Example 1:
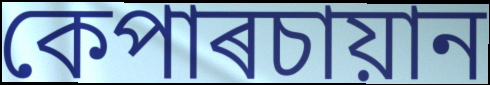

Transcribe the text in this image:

কেপাৰচায়ান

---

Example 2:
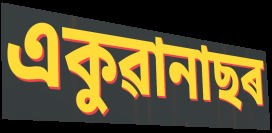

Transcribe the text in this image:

একুৱানাছৰ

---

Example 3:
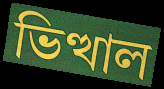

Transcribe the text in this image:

ভিত্থাল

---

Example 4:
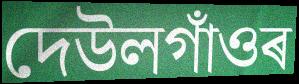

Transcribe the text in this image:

দেউলগাঁওৰ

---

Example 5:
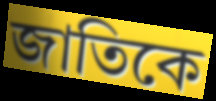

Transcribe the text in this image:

জাতিকে